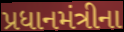
પ્રધાનમંત્રીના